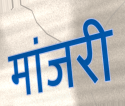
मांजरी